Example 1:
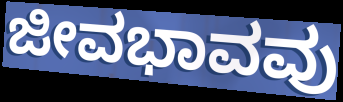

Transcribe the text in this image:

ಜೀವಭಾವವು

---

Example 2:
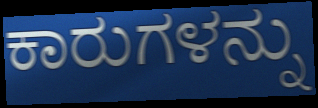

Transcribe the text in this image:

ಕಾರುಗಳನ್ನು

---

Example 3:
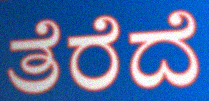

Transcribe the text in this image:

ತೆರೆದೆ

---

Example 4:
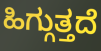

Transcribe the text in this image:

ಹಿಗ್ಗುತ್ತದೆ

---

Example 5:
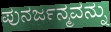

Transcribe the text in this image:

ಪುನರ್ಜನ್ಮವನ್ನು